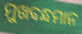
ମୁଖବନ୍ଧମାନ